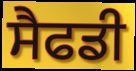
ਸੈਫਡੀ